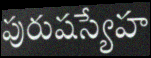
పురుషస్యేహ